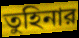
তুহিনার